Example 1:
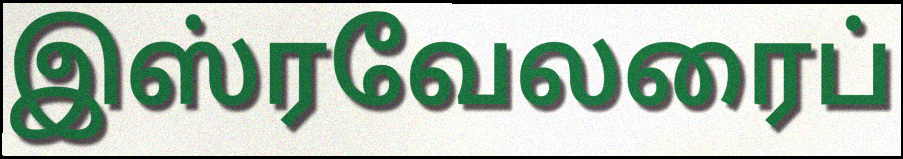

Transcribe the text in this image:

இஸ்ரவேலரைப்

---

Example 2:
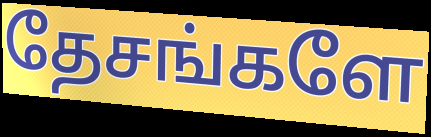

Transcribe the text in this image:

தேசங்களே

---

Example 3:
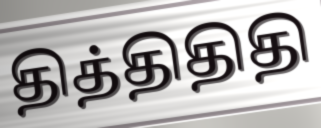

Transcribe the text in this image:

தித்திதிதி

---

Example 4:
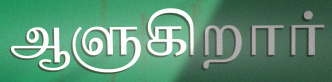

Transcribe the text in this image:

ஆளுகிறார்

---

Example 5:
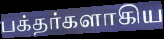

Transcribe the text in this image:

பக்தர்களாகிய